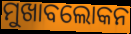
ମୁଖାବଲୋକନ